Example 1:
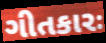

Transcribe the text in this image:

ગીતકારઃ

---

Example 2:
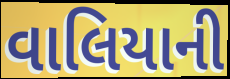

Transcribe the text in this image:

વાલિયાની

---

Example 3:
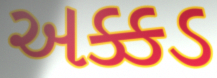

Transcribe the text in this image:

અક્કડ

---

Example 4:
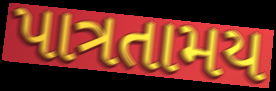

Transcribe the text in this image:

પાત્રતામય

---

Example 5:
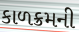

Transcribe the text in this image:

કાળક્રમની